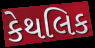
કેથલિક